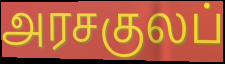
அரசகுலப்